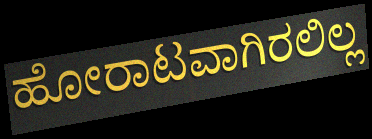
ಹೋರಾಟವಾಗಿರಲಿಲ್ಲ